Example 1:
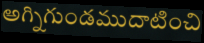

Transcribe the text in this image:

అగ్నిగుండముదాటించి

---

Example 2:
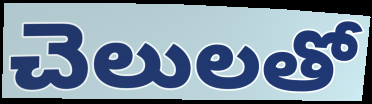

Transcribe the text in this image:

చెలులతో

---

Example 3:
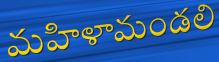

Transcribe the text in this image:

మహిళామండలి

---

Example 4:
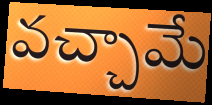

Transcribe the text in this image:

వచ్చామే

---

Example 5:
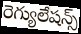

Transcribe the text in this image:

రెగ్యులేషన్స్